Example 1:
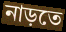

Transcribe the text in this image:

নাড়তে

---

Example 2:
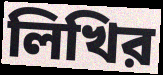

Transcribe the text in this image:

লিখির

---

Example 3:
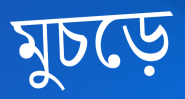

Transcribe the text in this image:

মুচড়ে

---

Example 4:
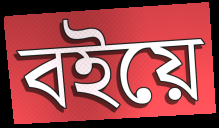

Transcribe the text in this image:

বইয়ে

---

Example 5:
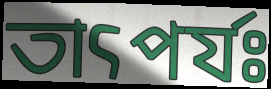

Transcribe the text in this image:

তাৎপর্যঃ